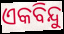
ଏକବିନ୍ଦୁ